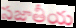
సజాతీయ